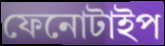
ফেনোটাইপ